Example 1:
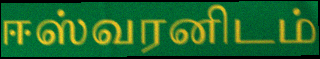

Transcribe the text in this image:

ஈஸ்வரனிடம்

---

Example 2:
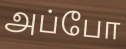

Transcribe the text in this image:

அப்போ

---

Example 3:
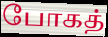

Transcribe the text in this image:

போகத்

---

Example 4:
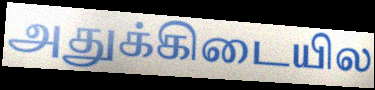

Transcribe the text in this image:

அதுக்கிடையில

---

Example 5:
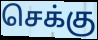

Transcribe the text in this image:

செக்கு